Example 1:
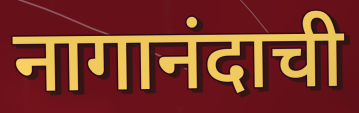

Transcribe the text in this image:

नागानंदाची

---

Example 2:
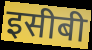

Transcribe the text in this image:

इसीबी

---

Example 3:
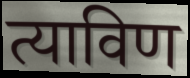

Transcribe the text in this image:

त्याविण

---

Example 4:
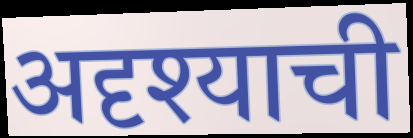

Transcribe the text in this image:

अदृश्याची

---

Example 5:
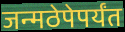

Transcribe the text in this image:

जन्मठेपेपर्यंत